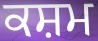
ਕਸ਼ਮ